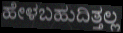
ಹೇಳಬಹುದಿತ್ತಲ್ಲ